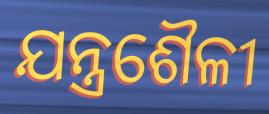
ଯନ୍ତ୍ରଶୈଳୀ